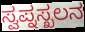
ಸ್ವಪ್ನಸ್ಖಲನ